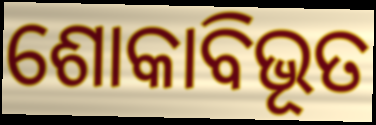
ଶୋକାବିଭୂତ